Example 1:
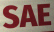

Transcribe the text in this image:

SAE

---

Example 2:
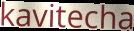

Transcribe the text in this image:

kavitecha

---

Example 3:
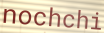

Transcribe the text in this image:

nochchi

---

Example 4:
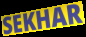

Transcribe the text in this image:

SEKHAR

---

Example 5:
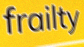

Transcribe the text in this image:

frailty